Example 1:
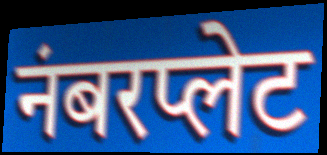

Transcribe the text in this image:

नंबरप्लेट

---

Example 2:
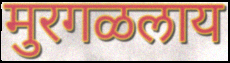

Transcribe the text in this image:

मुरगळलाय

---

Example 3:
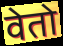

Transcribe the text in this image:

वेतो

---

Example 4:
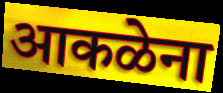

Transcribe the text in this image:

आकळेना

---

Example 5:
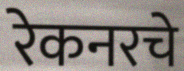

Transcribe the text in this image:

रेकनरचे